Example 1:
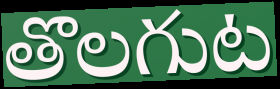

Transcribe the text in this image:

తొలగుట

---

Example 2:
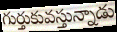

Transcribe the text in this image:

గుర్తుకువస్తున్నాడు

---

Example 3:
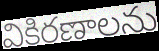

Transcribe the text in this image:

వికిరణాలను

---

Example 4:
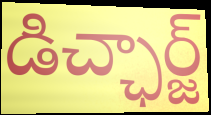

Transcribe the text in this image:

డిచ్ఛార్జ్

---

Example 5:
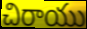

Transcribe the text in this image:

చిరాయు